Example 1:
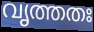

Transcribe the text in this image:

വൃത്തതഃ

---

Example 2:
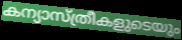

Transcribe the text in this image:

കന്യാസ്ത്രീകളുടെയും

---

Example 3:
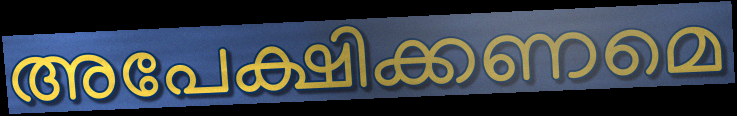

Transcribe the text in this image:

അപേക്ഷിക്കണമെ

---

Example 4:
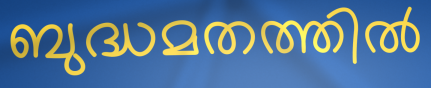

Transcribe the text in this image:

ബുദ്ധമതത്തിൽ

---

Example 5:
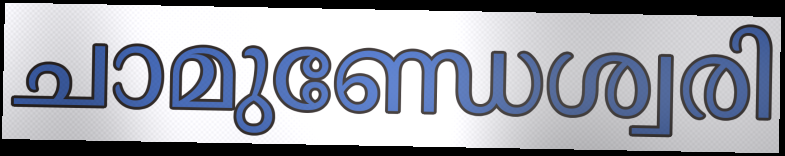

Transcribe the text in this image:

ചാമുണ്ഡേശ്വരി